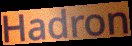
Hadron